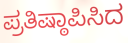
ಪ್ರತಿಷ್ಠಾಪಿಸಿದ